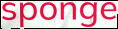
sponge